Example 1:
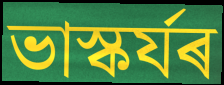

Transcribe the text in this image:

ভাস্কৰ্যৰ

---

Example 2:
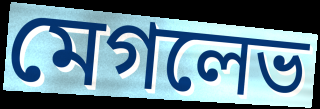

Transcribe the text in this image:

মেগলেভ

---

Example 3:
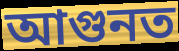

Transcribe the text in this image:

আগুনত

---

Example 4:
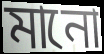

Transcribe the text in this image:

মানো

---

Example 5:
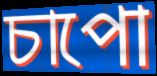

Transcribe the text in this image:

চাপো